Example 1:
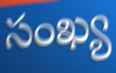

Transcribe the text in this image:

సంఖ్య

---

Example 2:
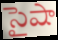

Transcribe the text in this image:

సైషా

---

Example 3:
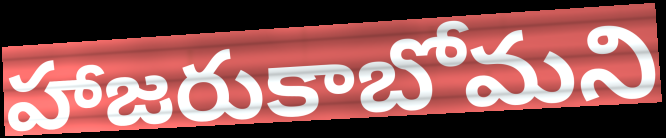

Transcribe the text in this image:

హాజరుకాబోమని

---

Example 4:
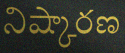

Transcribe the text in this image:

నిష్కారణ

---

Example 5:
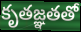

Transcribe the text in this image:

కృతజ్ఞతతో